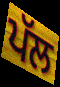
ਪੱਲ